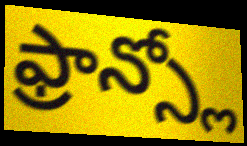
ఫ్రాన్స్లో